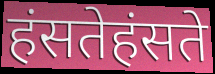
हंसतेहंसते